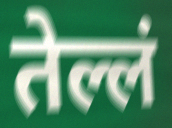
तेल्लं